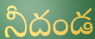
నీదండ